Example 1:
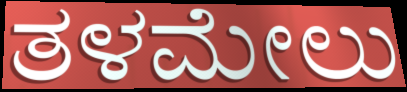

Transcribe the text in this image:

ತಳಮೇಲು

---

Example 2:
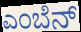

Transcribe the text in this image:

ಎಂಬೆನ್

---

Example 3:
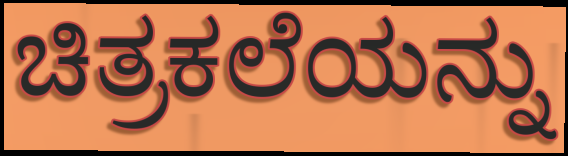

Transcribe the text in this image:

ಚಿತ್ರಕಲೆಯನ್ನು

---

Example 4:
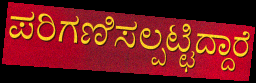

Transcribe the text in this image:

ಪರಿಗಣಿಸಲ್ಪಟ್ಟಿದ್ದಾರೆ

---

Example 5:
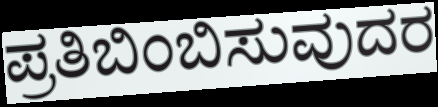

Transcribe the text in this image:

ಪ್ರತಿಬಿಂಬಿಸುವುದರ